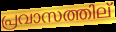
പ്രവാസത്തില്